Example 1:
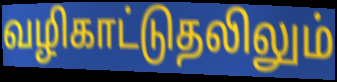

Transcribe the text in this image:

வழிகாட்டுதலிலும்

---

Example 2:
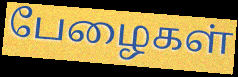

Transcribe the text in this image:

பேழைகள்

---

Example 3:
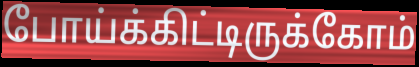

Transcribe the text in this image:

போய்க்கிட்டிருக்கோம்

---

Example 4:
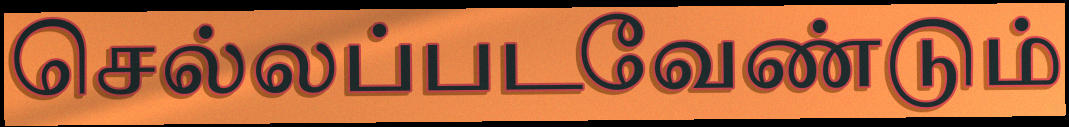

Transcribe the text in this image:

செல்லப்படவேண்டும்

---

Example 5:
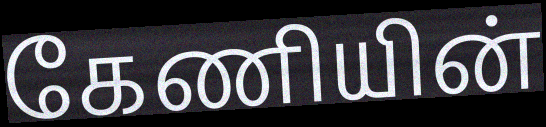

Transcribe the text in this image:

கேணியின்